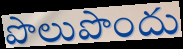
పొలుపొందు